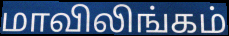
மாவிலிங்கம்